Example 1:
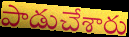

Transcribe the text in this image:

పాడుచేశారు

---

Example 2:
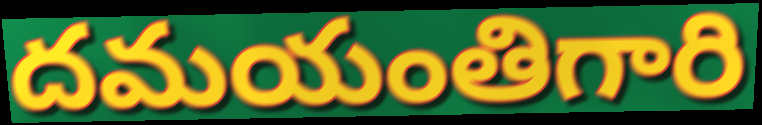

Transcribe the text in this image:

దమయంతిగారి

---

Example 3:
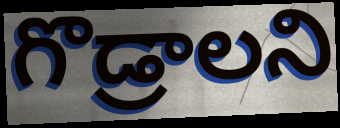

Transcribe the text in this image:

గొడ్రాలని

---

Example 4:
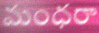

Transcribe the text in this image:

మంధరా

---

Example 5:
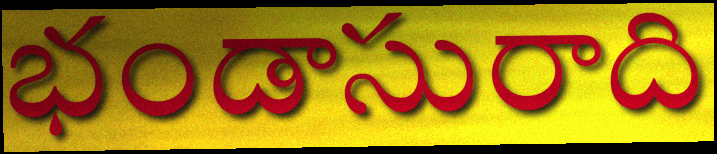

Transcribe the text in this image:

భండాసురాది